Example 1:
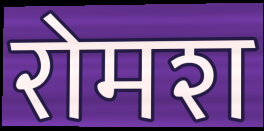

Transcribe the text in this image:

रोमश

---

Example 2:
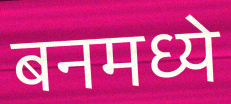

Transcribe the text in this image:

बनमध्ये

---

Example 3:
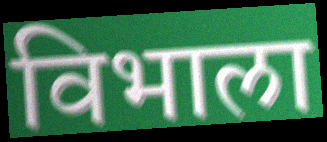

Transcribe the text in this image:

विभाला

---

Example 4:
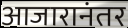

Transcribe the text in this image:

आजारानंतर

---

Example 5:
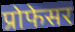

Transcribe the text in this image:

प्रोफेसर